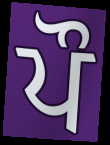
ਪੌ